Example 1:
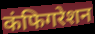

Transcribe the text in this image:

कंफिगरेशन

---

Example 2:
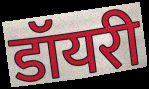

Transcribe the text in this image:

डॉयरी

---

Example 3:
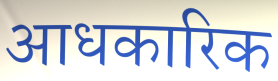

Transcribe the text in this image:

आधकारिक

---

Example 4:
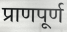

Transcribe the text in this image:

प्राणपूर्ण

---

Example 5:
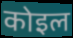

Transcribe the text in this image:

कोइल